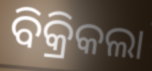
ବିକ୍ରିକଲା